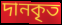
দানকৃত